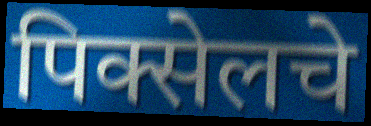
पिक्सेलचे